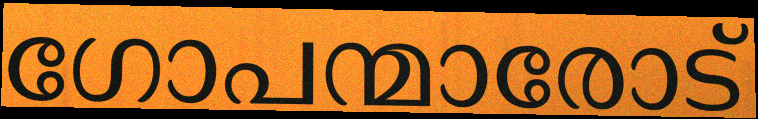
ഗോപന്മാരോട്